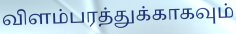
விளம்பரத்துக்காகவும்